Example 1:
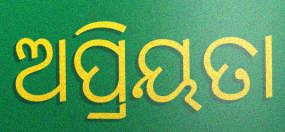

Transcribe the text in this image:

ଅପ୍ରିୟତା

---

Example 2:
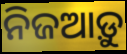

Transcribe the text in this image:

ନିଜଆଡ଼ୁ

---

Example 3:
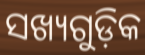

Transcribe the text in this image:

ସଖ୍ୟଗୁଡ଼ିକ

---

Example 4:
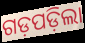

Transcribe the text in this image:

ଗଡ଼ପଡ଼ିଲା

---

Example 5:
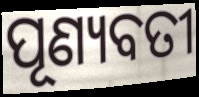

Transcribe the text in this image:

ପୂଣ୍ୟବତୀ